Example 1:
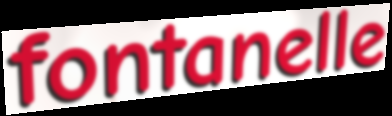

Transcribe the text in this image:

fontanelle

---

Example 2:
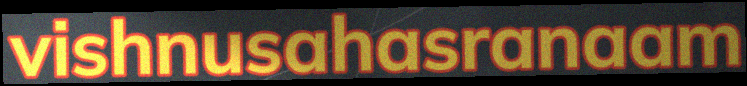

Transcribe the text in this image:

vishnusahasranaam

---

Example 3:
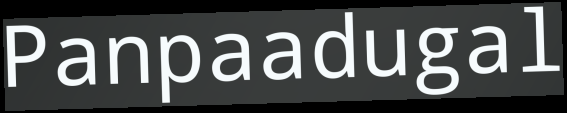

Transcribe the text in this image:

Panpaadugal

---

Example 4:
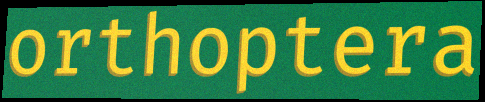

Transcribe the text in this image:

orthoptera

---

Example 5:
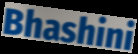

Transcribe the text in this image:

Bhashini